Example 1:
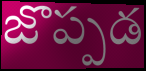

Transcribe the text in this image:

జొప్పడ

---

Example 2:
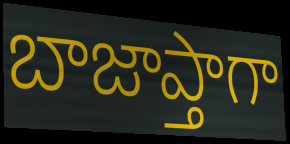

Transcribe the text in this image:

బాజాప్తాగా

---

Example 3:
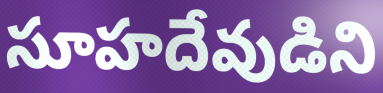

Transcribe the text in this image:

సూహదేవుడిని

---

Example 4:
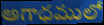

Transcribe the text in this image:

అగాధములో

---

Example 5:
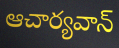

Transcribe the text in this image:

ఆచార్యవాన్